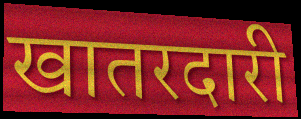
खातरदारी